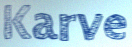
Karve